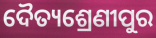
ଦୈତ୍ୟଶ୍ରେଣୀପୁର